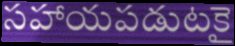
సహాయపడుటకై